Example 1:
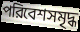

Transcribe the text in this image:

পরিবেশসমৃদ্ধ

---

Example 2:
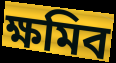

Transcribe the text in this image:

ক্ষমিব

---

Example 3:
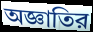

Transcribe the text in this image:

অজ্ঞাতির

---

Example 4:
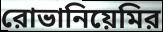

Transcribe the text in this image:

রোভানিয়েমির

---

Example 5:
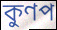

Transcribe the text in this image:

কুণপ